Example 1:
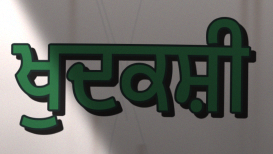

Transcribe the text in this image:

ਖੁਦਕਸ਼ੀ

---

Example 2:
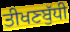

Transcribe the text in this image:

ਤੀਖਣਬੁੱਧੀ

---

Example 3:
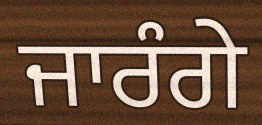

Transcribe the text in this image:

ਜਾਰੰਗੇ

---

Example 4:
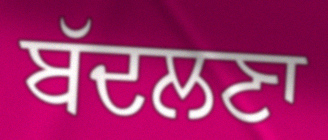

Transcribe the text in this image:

ਬੱਦਲਣਾ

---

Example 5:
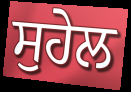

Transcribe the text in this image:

ਸੁਹੇਲ